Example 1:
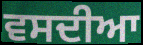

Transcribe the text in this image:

ਵਸਦੀਆ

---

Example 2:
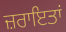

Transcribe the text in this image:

ਜ਼ਰਾਇਤਾਂ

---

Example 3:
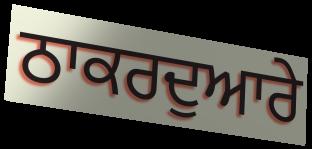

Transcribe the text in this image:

ਠਾਕਰਦੁਆਰੇ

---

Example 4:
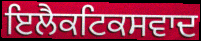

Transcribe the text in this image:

ਇਲੈਕਟਿਕਸਵਾਦ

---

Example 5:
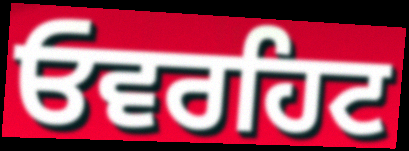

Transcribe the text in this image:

ਓਵਰਹਿਟ